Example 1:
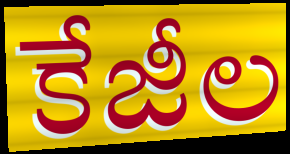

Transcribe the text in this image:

కేజీల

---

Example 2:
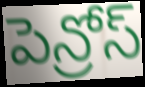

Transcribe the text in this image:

పెన్రోస్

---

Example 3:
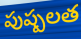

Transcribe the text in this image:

పుష్పలత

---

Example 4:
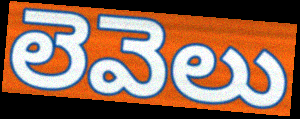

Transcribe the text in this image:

లెవెలు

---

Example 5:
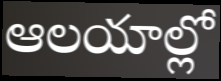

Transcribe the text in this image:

ఆలయాల్లో